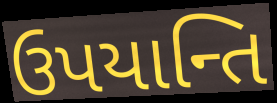
ઉપયાન્તિ